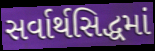
સર્વાર્થસિદ્ધમાં